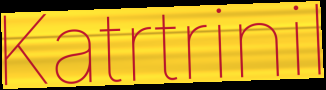
Katrtrinil